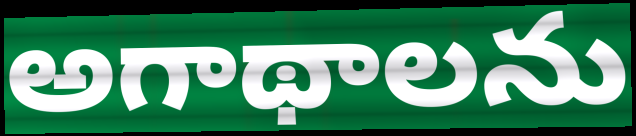
అగాథాలను